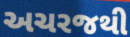
અચરજથી